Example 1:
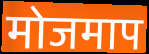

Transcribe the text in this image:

मोजमाप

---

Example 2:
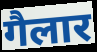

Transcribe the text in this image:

गैलार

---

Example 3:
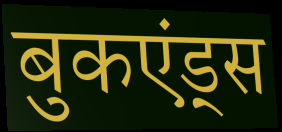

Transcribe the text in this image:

बुकएंड्स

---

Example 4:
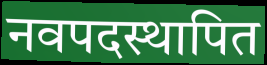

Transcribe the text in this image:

नवपदस्थापित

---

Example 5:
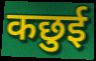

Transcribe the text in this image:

कछुई